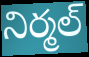
నిర్మల్